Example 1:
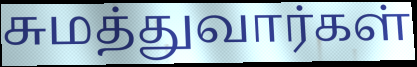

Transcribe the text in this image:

சுமத்துவார்கள்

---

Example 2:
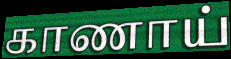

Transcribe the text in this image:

காணாய்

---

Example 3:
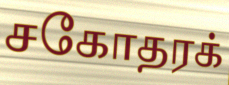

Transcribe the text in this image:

சகோதரக்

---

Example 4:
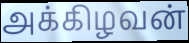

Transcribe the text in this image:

அக்கிழவன்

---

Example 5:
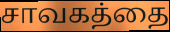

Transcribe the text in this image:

சாவகத்தை